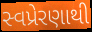
સ્વપ્રેરણાથી